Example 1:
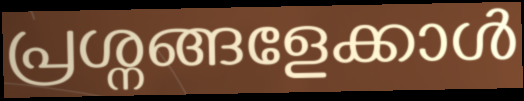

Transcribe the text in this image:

പ്രശ്നങ്ങളേക്കാൾ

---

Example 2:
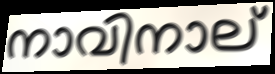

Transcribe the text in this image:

നാവിനാല്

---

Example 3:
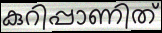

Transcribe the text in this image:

കുറിപ്പാണിത്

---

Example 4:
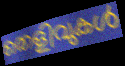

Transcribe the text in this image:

തെളിവുകൾ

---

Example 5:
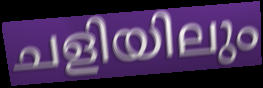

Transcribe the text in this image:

ചളിയിലും